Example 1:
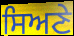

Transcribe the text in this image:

ਸਿਅਣੇ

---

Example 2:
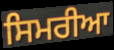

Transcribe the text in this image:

ਸਿਮਰੀਆ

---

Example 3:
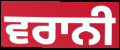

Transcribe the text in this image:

ਵਰਾਨੀ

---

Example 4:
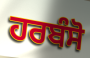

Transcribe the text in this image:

ਹਰਬੰਸੋ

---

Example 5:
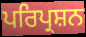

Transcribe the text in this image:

ਪਰਿਪ੍ਰਸ਼ਨ